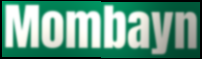
Mombayn